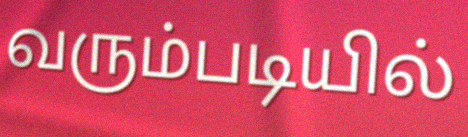
வரும்படியில்